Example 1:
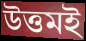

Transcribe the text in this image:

উত্তমই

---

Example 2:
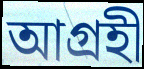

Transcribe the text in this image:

আগ্রহী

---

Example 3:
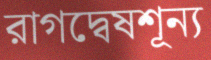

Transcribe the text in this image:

রাগদ্বেষশূন্য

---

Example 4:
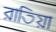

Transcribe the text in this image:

রাতিয়া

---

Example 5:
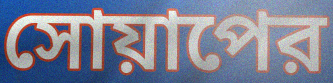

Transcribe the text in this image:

সোয়াপের